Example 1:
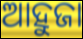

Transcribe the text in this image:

ଆହୁଜା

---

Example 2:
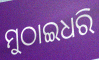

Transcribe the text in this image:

ମୁଠାଇଧରି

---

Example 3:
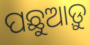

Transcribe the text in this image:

ପଛୁଆଡ଼ୁ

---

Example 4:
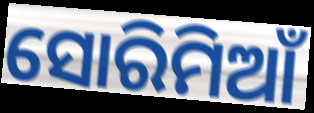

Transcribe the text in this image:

ସୋରିମିଆଁ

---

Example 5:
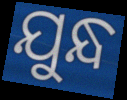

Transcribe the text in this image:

ଯୁନ୍ଧ